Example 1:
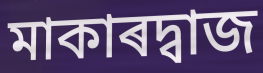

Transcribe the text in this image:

মাকাৰদ্বাজ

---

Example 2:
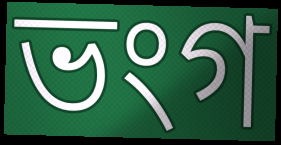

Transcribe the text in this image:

ভংগ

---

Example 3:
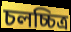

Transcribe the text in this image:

চলচ্চিত্ৰ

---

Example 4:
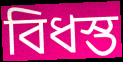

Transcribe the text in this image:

বিধস্ত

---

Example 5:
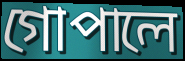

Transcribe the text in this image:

গোপালে